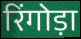
रिंगोड़ा